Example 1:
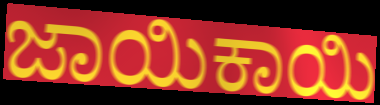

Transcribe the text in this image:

ಜಾಯಿಕಾಯಿ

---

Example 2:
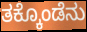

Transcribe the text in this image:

ತಕ್ಕೊಂಡೆನು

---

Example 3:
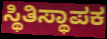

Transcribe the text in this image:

ಸ್ಥಿತಿಸ್ಥಾಪಕ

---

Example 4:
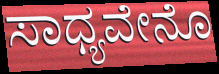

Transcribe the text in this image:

ಸಾಧ್ಯವೇನೊ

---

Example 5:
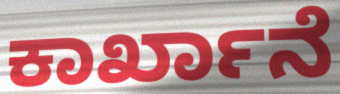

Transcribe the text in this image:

ಕಾರ್ಖಾನೆ